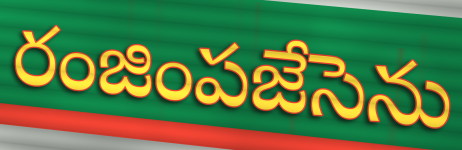
రంజింపజేసెను